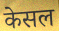
केसल